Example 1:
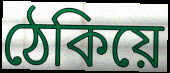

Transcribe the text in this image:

ঠেকিয়ে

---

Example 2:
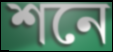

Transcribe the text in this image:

শনে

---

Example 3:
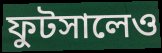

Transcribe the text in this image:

ফুটসালেও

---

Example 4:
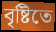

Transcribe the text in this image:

বৃষ্টিতে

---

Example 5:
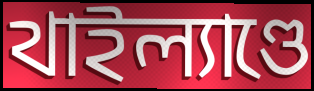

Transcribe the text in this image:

থাইল্যাণ্ডে